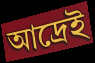
আদ্রেই